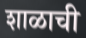
शाळाची